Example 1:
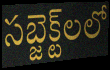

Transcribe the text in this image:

సబ్జెక్ట్‌లలో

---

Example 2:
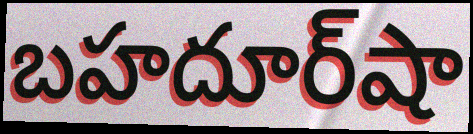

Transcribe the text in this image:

బహదూర్‌షా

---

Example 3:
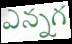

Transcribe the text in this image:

ఎన్నగ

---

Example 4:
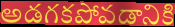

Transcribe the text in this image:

అడగకపోవడానికి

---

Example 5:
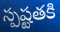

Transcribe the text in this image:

స్పష్టతకి